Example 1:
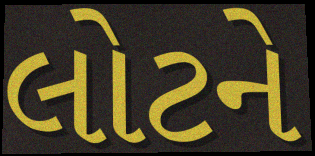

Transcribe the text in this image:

લોટને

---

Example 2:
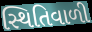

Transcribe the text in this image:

સ્થિતિવાળી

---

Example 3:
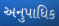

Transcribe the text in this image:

અનુપાધિક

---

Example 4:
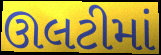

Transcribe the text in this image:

ઊલટીમાં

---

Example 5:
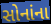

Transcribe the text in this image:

સોનાંના